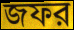
জফর